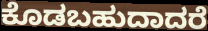
ಕೊಡಬಹುದಾದರೆ